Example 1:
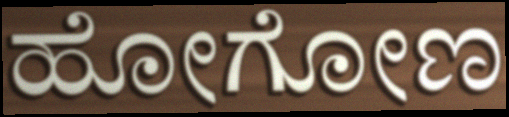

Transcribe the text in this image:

ಹೋಗೋಣ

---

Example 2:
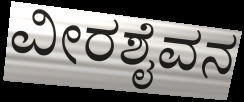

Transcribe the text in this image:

ವೀರಶೈವನ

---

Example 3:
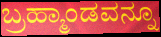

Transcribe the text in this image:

ಬ್ರಹ್ಮಾಂಡವನ್ನೂ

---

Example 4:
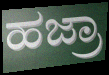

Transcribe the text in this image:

ಹಜ್ರಾ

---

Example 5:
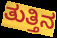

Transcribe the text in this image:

ತುತ್ತಿನ